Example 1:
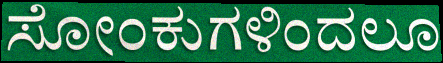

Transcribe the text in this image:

ಸೋಂಕುಗಳಿಂದಲೂ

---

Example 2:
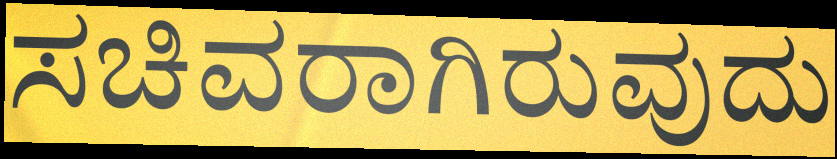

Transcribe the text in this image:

ಸಚಿವರಾಗಿರುವುದು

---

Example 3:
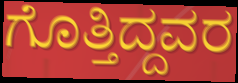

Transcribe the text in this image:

ಗೊತ್ತಿದ್ದವರ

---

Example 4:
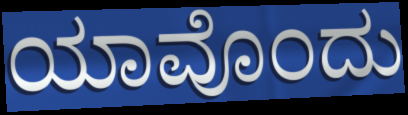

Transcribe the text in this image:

ಯಾವೊಂದು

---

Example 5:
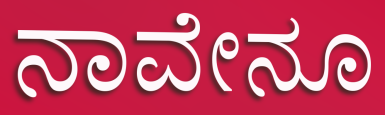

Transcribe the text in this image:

ನಾವೇನೂ